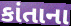
કાંતાના